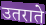
उतराते